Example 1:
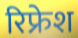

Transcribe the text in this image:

रिफ्रेश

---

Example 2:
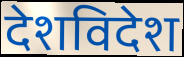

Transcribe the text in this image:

देशविदेश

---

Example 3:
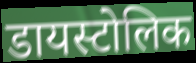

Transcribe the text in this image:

डायस्टोलिक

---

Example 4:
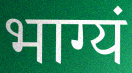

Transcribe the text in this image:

भाग्यं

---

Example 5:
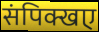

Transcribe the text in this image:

संपिक्खए